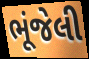
ભૂંજેલી